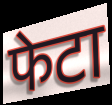
फेटा